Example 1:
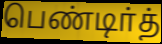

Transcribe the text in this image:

பெண்டிர்த்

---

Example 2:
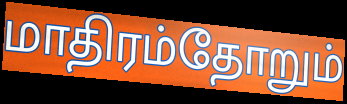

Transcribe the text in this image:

மாதிரம்தோறும்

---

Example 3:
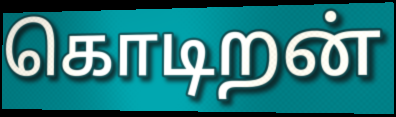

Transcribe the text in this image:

கொடிறன்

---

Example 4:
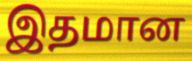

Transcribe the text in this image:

இதமான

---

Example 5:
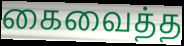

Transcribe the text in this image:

கைவைத்த